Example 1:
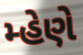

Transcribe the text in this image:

મ્હેણે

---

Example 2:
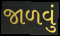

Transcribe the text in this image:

જાળવું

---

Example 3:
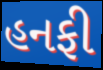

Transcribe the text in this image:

હનફી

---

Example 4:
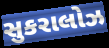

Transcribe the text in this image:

સુકરાલોઝ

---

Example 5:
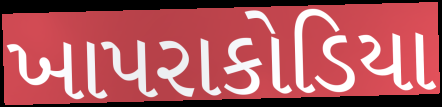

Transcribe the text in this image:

ખાપરાકોડિયા